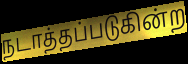
நடாத்தப்படுகின்ற